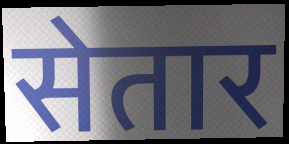
सेतार